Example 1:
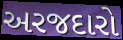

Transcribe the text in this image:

અરજદારો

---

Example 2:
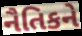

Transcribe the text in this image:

નૈતિકને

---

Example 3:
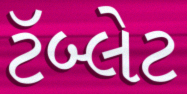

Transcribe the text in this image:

ટૅબ્લેટ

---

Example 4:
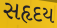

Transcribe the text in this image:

સહૃદય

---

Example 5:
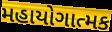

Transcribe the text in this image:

મહાયોગાત્મક